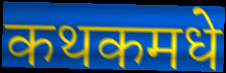
कथकमधे